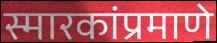
स्मारकांप्रमाणे